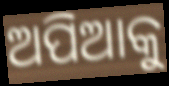
ଅପିଆକୁ